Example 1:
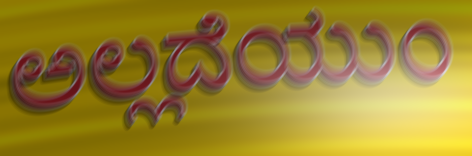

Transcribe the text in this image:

ಅಲ್ಲದೆಯುಂ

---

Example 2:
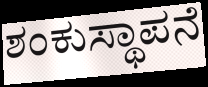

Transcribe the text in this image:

ಶಂಕುಸ್ಥಾಪನೆ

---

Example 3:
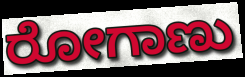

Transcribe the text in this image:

ರೋಗಾಣು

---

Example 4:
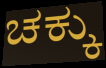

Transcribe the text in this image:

ಚಕ್ಕು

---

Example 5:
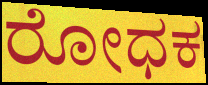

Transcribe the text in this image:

ರೋಧಕ